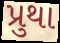
પ્રુથા